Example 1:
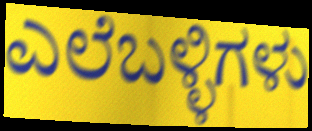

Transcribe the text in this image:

ಎಲೆಬಳ್ಳಿಗಳು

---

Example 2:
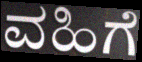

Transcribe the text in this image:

ವಹಿಗೆ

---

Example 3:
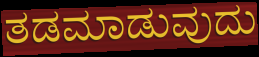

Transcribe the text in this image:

ತಡಮಾಡುವುದು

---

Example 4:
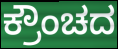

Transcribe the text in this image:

ಕ್ರೌಂಚದ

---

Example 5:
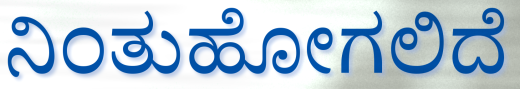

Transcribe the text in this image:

ನಿಂತುಹೋಗಲಿದೆ